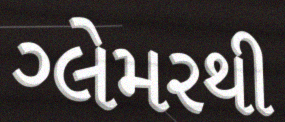
ગ્લેમરથી